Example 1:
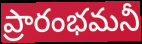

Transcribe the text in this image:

ప్రారంభమనీ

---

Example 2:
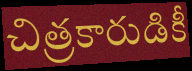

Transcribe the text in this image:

చిత్రకారుడికీ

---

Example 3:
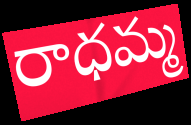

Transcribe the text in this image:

రాధమ్మ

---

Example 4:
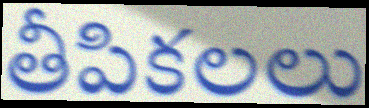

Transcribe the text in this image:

తీపికలలు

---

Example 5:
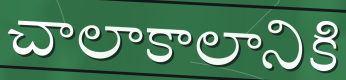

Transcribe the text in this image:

చాలాకాలానికి